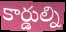
కార్డుల్ని